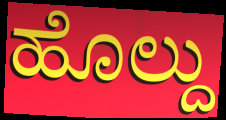
ಹೊಲ್ದು